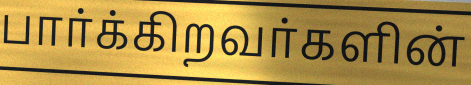
பார்க்கிறவர்களின்